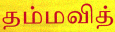
தம்மவித்